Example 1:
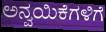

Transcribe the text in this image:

ಅನ್ವಯಿಕೆಗಳಿಗೆ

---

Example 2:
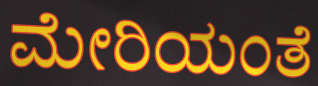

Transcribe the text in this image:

ಮೇರಿಯಂತೆ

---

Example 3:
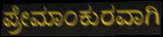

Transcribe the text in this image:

ಪ್ರೇಮಾಂಕುರವಾಗಿ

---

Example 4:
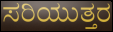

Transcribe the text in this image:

ಸರಿಯುತ್ತರ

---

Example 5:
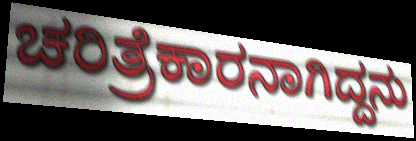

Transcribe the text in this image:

ಚರಿತ್ರೆಕಾರನಾಗಿದ್ದನು